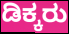
ಡಿಕ್ಕರು